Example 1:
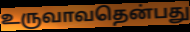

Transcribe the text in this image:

உருவாவதென்பது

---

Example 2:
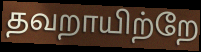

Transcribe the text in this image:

தவறாயிற்றே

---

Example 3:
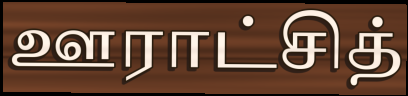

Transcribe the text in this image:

ஊராட்சித்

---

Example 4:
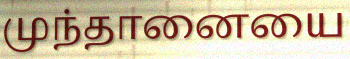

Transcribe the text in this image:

முந்தானையை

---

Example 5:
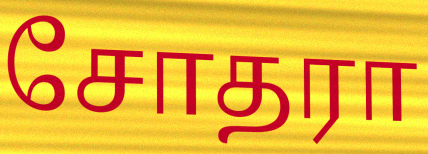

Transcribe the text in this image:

சோதரா